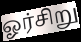
ஓர்சிறு